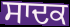
ਸਾਦਕ